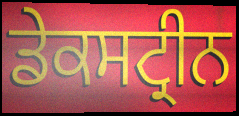
ਡੇਕਸਟ੍ਰੀਨ